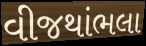
વીજથાંભલા